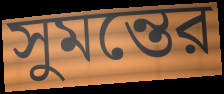
সুমন্তের